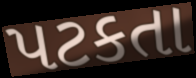
પટકતા